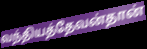
வந்தியத்தேவன்தான்